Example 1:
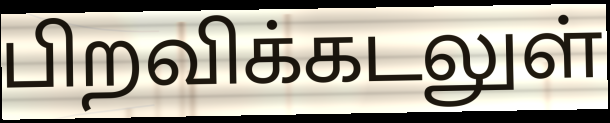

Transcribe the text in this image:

பிறவிக்கடலுள்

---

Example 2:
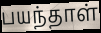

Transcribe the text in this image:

பயந்தாள்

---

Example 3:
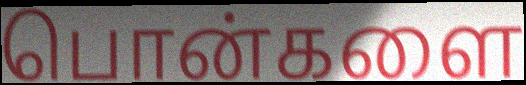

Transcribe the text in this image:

பொன்களை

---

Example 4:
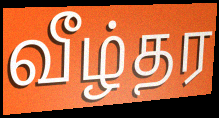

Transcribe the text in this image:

வீழ்தர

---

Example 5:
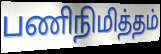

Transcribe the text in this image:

பணிநிமித்தம்